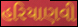
હરિયાણવી